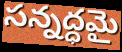
సన్నద్ధమై